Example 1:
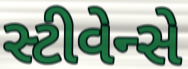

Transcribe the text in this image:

સ્ટીવેન્સે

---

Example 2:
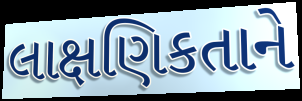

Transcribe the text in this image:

લાક્ષણિકતાને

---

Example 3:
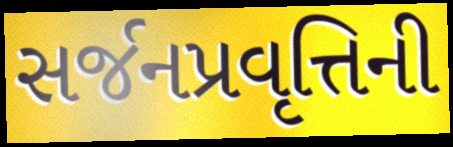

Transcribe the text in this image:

સર્જનપ્રવૃત્તિની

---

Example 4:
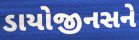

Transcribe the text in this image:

ડાયોજીનસને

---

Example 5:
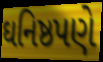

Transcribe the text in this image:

ઘનિષ્ઠપણે